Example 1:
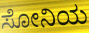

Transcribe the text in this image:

ಸೋನಿಯ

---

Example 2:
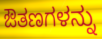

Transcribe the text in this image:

ಔತಣಗಳನ್ನು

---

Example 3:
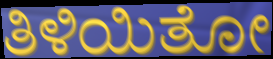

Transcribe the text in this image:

ತಿಳಿಯಿತೋ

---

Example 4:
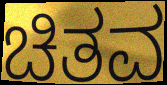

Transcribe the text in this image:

ಚಿತವ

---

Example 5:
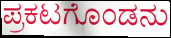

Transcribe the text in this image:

ಪ್ರಕಟಗೊಂಡನು